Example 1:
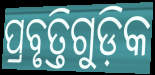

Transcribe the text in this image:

ପ୍ରବୃତ୍ତିଗୁଡ଼ିକ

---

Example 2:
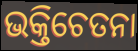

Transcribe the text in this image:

ଭକ୍ତିଚେତନା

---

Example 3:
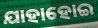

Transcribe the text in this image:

ଯାହାହୋଇ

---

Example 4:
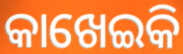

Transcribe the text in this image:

କାଖେଇକି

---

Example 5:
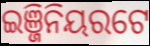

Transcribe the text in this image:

ଇଞ୍ଜିନିୟରଟେ